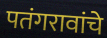
पतंगरावांचे